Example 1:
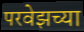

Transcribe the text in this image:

परवेझच्या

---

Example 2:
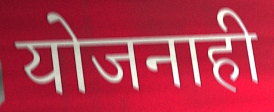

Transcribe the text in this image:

योजनाही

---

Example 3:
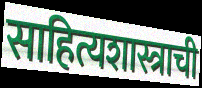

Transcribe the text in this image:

साहित्यशास्त्राची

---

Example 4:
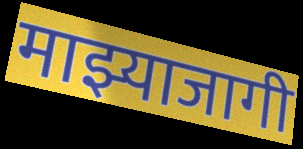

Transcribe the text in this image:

माझ्याजागी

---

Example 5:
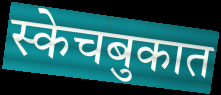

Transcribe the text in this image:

स्केचबुकात